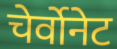
चेर्वोनेट